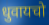
धुवायचो